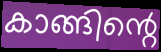
കാങ്ങിന്റെ